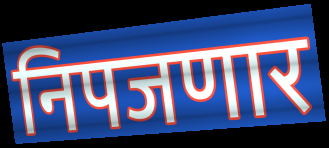
निपजणार